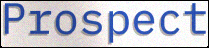
Prospect